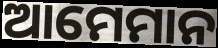
ଆମେମାନ